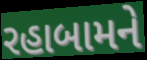
રહાબામને